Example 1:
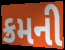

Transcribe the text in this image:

ક્રમની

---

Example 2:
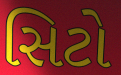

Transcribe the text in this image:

સિટો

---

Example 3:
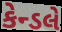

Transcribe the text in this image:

કેન્ડલે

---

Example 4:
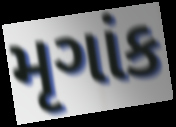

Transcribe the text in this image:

મૃગાંક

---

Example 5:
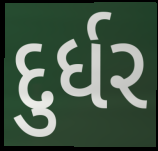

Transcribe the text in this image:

દુર્ધર